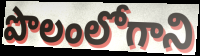
పొలంలోగాని